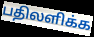
பதிலளிக்க